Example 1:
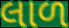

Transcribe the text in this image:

લાળ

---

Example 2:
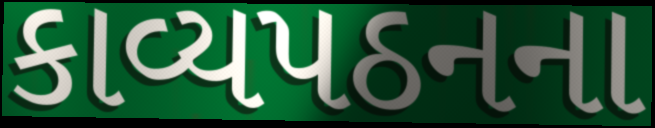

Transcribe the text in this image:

કાવ્યપઠનના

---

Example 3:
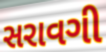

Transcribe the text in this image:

સરાવગી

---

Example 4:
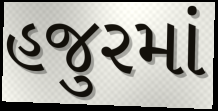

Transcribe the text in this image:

હજુરમાં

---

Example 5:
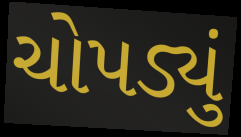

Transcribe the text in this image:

ચોપડ્યું